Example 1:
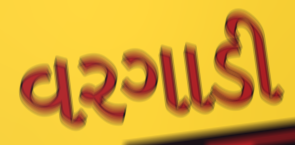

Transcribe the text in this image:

વરગાડી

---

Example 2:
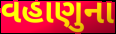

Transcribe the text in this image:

વહાણુના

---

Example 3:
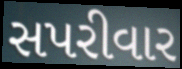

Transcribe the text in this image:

સપરીવાર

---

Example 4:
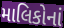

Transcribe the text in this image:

માલિકોનાં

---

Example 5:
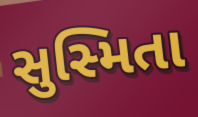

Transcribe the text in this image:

સુસ્મિતા